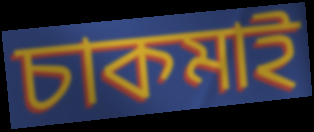
চাকমাই